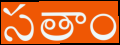
సతాం